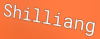
Shilliang